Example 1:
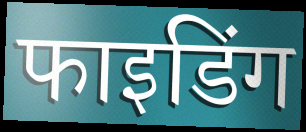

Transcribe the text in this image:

फाइडिंग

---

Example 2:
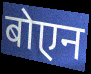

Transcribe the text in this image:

बोएन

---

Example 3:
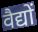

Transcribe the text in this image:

वैद्यों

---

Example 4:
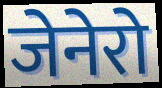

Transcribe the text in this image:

जेनेरो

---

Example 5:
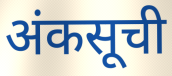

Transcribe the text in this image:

अंकसूची